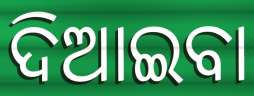
ଦିଆଇବା